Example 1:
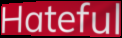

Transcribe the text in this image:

Hateful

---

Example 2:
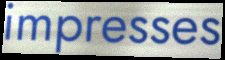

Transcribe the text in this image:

impresses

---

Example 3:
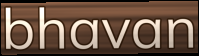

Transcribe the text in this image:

bhavan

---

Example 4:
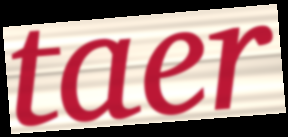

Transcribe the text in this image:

taer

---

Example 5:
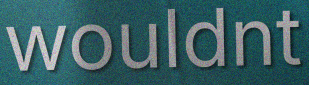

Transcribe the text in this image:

wouldnt